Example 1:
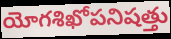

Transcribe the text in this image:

యోగశిఖోపనిషత్తు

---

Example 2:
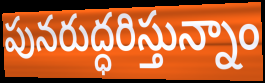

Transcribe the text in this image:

పునరుద్ధరిస్తున్నాం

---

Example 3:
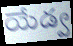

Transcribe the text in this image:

యేడ్వ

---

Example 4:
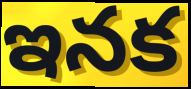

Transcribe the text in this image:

ఇనక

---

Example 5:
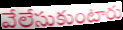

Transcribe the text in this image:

వేలేసుకుంటారు